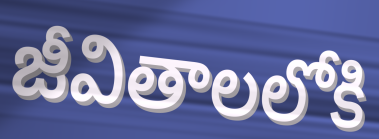
జీవితాలలోకి